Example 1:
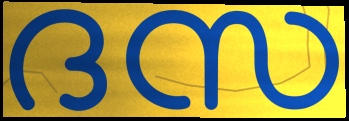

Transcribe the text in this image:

ദസ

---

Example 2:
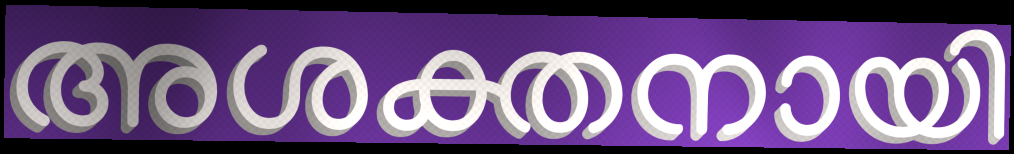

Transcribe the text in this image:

അശക്തനായി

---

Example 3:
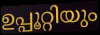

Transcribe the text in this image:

ഉപ്പൂറ്റിയും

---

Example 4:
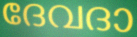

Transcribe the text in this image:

ദേവദാ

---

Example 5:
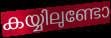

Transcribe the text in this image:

കയ്യിലുണ്ടോ